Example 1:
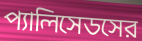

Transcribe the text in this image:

প্যালিসেডসের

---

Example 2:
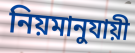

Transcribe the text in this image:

নিয়মানুযায়ী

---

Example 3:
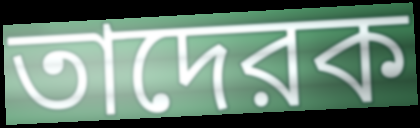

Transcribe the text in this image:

তাদেরক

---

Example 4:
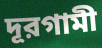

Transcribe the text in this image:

দূরগামী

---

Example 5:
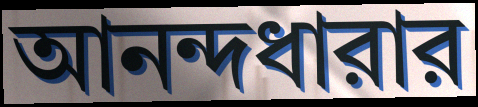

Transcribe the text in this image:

আনন্দধারার